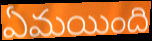
ఏమయింది